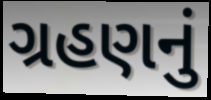
ગ્રહણનું